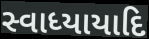
સ્વાધ્યાયાદિ